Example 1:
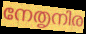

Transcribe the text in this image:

നേതൃനിര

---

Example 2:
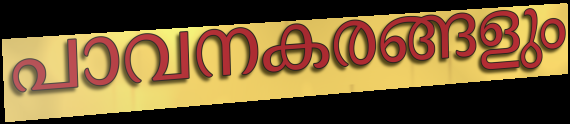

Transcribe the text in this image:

പാവനകരങ്ങളും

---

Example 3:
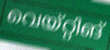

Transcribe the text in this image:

വെയ്റ്റിങ്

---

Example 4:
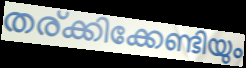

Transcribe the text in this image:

തര്ക്കിക്കേണ്ടിയും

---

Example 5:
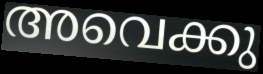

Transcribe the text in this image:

അവെക്കു